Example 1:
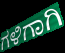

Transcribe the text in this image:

ಗಳಿಗಾಗಿ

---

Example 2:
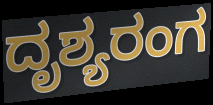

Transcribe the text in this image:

ದೃಶ್ಯರಂಗ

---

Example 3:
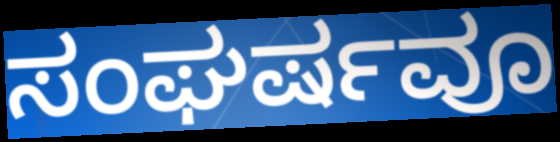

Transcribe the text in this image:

ಸಂಘರ್ಷವೂ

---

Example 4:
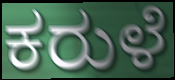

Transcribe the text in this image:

ಕರುಳೆ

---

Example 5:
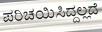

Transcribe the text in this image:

ಪರಿಚಯಿಸಿದ್ದಲ್ಲದೆ